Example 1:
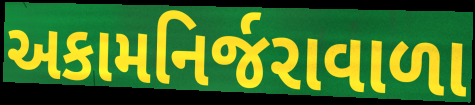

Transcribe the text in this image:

અકામનિર્જરાવાળા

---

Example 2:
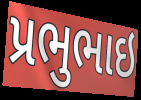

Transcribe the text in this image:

પ્રભુભાઇ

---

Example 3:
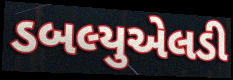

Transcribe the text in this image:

ડબલ્યુએલડી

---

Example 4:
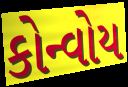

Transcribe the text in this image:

કોન્વોય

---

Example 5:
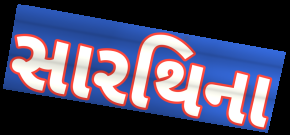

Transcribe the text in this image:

સારથિના